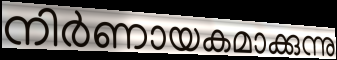
നിർണായകമാക്കുന്നു